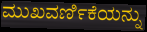
ಮುಖವರ್ಣಿಕೆಯನ್ನು